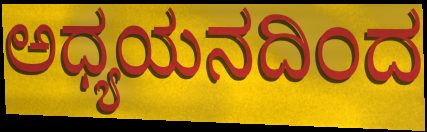
ಅಧ್ಯಯನದಿಂದ